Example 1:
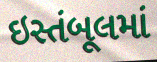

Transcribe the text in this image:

ઇસ્તંબૂલમાં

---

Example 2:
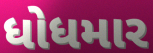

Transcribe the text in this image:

ધોધમાર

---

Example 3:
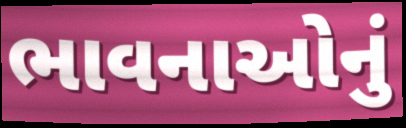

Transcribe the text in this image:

ભાવનાઓનું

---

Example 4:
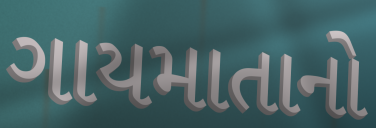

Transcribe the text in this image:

ગાયમાતાનો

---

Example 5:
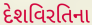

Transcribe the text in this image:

દેશવિરતિના